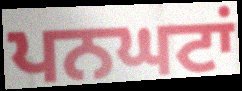
ਪਨਘਟਾਂ